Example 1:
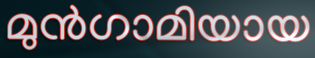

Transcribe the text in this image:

മുൻഗാമിയായ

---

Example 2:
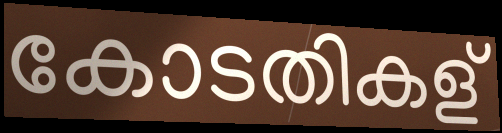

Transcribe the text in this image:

കോടതികള്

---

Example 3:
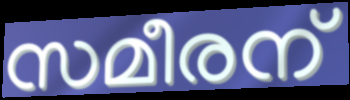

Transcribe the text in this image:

സമീരന്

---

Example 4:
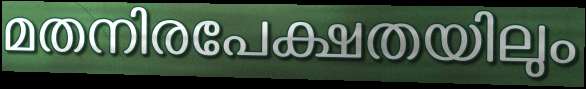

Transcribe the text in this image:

മതനിരപേക്ഷതയിലും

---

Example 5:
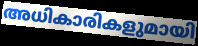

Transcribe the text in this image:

അധികാരികളുമായി